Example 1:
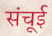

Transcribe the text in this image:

संचूई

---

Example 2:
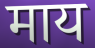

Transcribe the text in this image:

माय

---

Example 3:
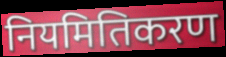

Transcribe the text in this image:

नियमितिकरण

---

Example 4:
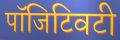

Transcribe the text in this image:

पॉजिटिवटी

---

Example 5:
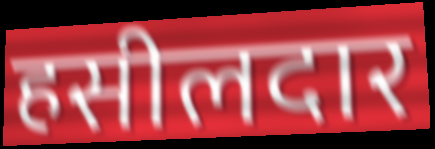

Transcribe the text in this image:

हसीलदार